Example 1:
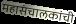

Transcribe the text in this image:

महासंचालकांची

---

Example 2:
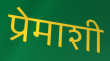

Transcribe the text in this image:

प्रेमाशी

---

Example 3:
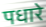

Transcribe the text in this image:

पधारे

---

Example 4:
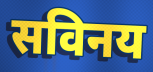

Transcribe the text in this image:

सविनय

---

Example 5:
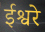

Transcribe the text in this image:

ईश्वरे